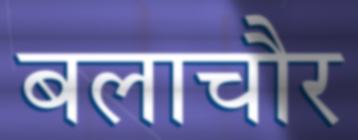
बलाचौर